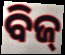
ବିଜ୍